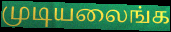
முடியலைங்க